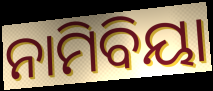
ନାମିବିୟା